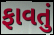
ફાવતું